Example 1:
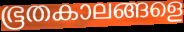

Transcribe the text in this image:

ഭൂതകാലങ്ങളെ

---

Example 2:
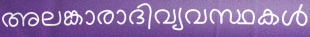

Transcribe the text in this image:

അലങ്കാരാദിവ്യവസ്ഥകൾ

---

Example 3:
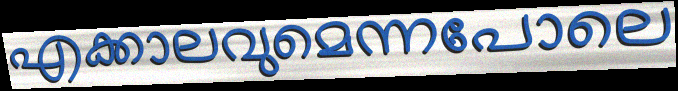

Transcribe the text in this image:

എക്കാലവുമെന്നപോലെ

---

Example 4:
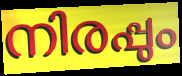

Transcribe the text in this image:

നിരപ്പും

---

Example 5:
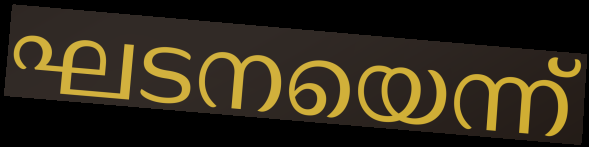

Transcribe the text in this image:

ഘടനയെന്ന്